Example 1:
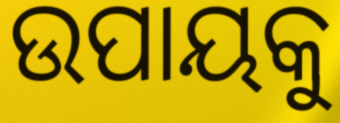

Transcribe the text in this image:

ଉପାୟକୁ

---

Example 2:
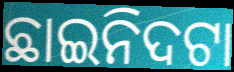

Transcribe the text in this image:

ଛାଇନିଦଟା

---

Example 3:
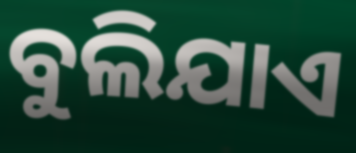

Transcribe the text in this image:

ବୁଲିଯାଏ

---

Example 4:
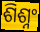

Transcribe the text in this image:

ଶିଶ୍ନଂ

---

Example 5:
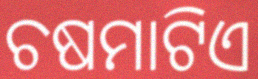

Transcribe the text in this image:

ଚଷମାଟିଏ